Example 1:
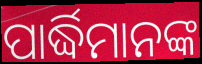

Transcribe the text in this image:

ପାର୍ଦ୍ଧିମାନଙ୍କ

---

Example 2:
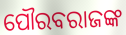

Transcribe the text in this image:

ପୌରବରାଜଙ୍କ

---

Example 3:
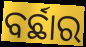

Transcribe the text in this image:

ବର୍ଛାର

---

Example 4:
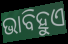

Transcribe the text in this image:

ଭାବିହୁଏ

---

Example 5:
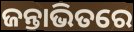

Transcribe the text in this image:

ଜନ୍ତାଭିତରେ